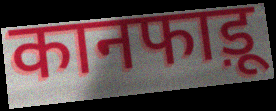
कानफाड़ू